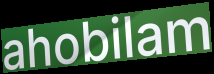
ahobilam